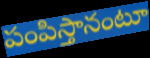
పంపిస్తానంటూ